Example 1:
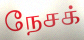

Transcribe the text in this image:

நேசக்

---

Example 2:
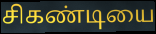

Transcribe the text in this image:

சிகண்டியை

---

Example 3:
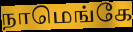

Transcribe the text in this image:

நாமெங்கே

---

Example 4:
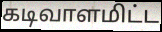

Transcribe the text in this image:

கடிவாளமிட்ட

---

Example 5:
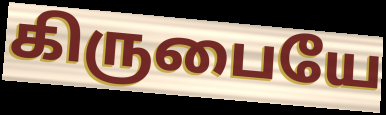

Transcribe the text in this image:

கிருபையே